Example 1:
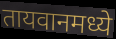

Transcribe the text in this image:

तायवानमध्ये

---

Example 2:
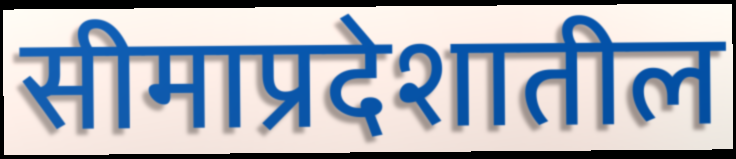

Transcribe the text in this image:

सीमाप्रदेशातील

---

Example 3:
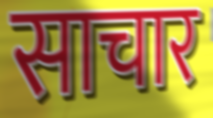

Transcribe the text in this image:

साचार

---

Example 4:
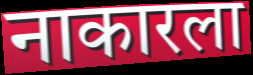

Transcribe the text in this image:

नाकारला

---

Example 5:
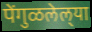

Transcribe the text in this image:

पेंगुळलेल्या